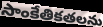
సాంకేతికతలను